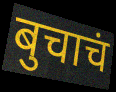
बुचाचं